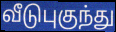
வீடுபுகுந்து